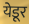
येडूर